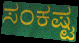
ಸಂಕಷ್ಟ